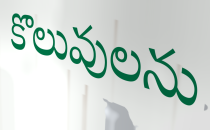
కొలువులను